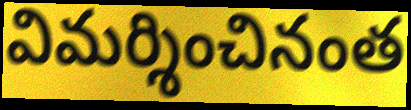
విమర్శించినంత